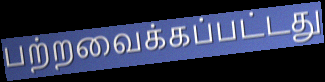
பற்றவைக்கப்பட்டது